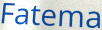
Fatema